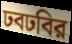
ঢবঢবির